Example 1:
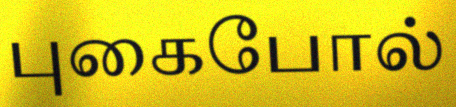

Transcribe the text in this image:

புகைபோல்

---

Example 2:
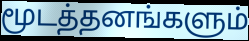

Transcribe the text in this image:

மூடத்தனங்களும்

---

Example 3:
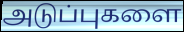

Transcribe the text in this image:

அடுப்புகளை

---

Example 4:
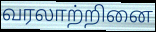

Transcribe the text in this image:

வரலாற்றினை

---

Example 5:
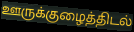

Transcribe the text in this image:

ஊருக்குழைத்திடல்